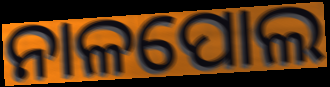
ନାଳପୋଲ